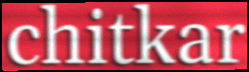
chitkar